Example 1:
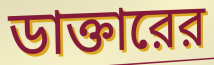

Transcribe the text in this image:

ডাক্তারের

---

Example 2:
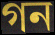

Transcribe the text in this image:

গন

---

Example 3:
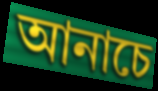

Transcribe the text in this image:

আনাচে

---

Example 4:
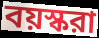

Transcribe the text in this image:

বয়স্করা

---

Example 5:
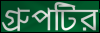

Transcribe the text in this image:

গ্রুপটির